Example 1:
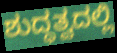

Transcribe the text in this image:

ಶುದ್ಧತ್ವದಲ್ಲಿ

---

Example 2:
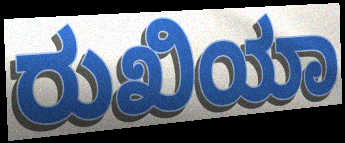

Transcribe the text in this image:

ರುಖಿಯಾ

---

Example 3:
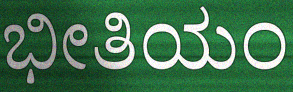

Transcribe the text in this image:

ಭೀತಿಯಂ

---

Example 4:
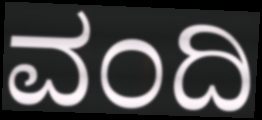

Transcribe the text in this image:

ವಂದಿ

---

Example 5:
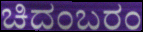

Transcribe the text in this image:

ಚಿದಂಬರಂ